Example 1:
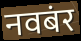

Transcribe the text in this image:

नवबंर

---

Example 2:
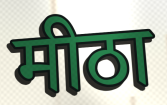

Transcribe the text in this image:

मीठा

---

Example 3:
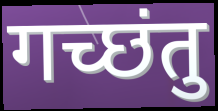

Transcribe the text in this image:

गच्छंतु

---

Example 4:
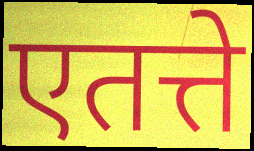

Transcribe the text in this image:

एतत्ते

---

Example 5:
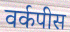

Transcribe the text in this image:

वर्कपीस